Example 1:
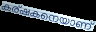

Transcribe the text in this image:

കര്ഷകനെയാണ്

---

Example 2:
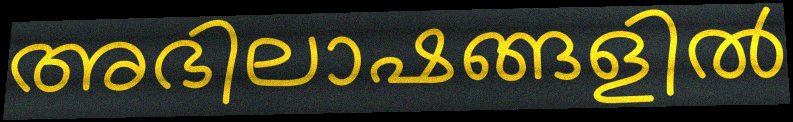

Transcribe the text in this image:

അഭിലാഷങ്ങളിൽ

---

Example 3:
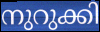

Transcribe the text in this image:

നുറുക്കി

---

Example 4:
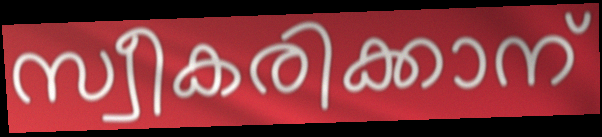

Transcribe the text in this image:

സ്വീകരിക്കാന്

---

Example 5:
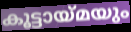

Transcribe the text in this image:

കൂട്ടായ്മയും